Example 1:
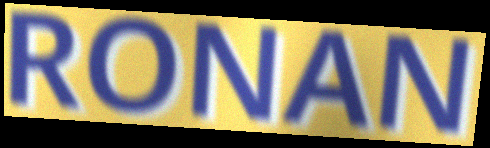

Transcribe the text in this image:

RONAN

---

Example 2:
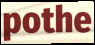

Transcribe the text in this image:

pothe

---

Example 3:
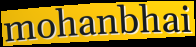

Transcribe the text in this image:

mohanbhai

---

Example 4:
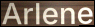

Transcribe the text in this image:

Arlene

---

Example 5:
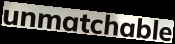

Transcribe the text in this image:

unmatchable